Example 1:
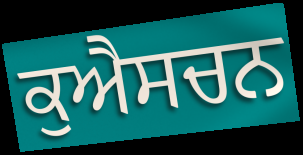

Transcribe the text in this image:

ਕੁਐਸਚਨ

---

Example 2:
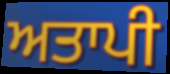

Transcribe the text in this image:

ਅਤਾਪੀ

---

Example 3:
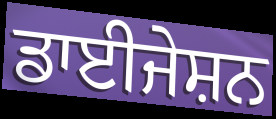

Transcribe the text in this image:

ਡਾਈਜੇਸ਼ਨ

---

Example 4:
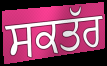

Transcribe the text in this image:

ਸਕਤੱਰ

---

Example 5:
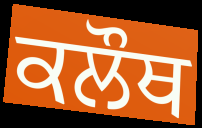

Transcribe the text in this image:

ਕਲੌਥ